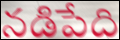
నడిపేది